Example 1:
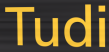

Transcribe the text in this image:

Tudi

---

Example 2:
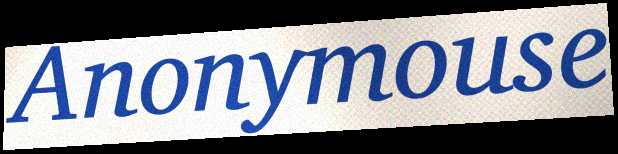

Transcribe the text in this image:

Anonymouse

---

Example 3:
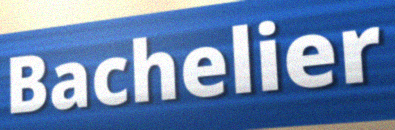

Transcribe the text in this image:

Bachelier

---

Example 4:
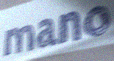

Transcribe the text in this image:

mano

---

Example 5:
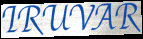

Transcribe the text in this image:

IRUVAR